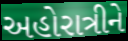
અહોરાત્રીને